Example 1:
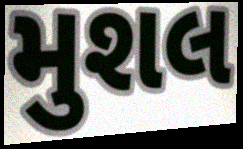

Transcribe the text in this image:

મુશલ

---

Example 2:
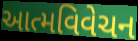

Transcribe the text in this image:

આત્મવિવેચન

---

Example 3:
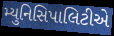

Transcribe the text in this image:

મ્યુનિસિપાલિટીએ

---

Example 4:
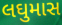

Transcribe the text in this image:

લઘુમાસ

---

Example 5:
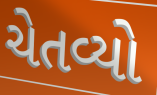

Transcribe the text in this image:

ચેતવ્યો